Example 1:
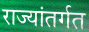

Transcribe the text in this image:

राज्यांतर्गत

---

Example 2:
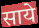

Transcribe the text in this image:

साये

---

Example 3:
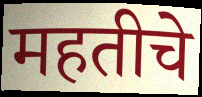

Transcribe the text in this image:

महतीचे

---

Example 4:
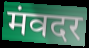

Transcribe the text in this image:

मंवदर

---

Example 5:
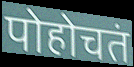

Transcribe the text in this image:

पोहोचतं